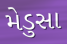
મેડુસા